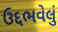
ઉદ્દભવેલું